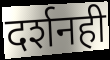
दर्शनही